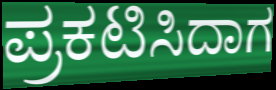
ಪ್ರಕಟಿಸಿದಾಗ